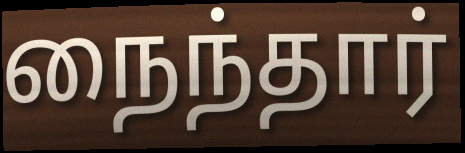
நைந்தார்